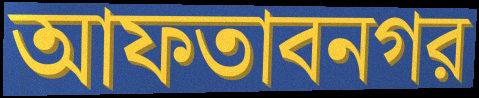
আফতাবনগর